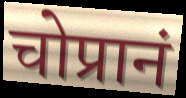
चोप्रानं